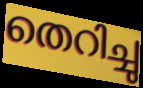
തെറിച്ചു